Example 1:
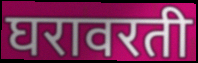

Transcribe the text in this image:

घरावरती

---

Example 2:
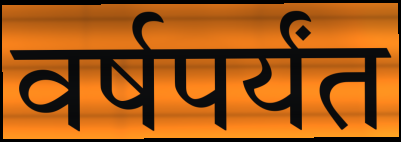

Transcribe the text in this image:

वर्षपर्यंत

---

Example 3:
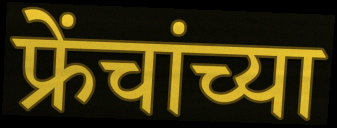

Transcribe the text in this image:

फ्रेंचांच्या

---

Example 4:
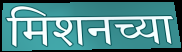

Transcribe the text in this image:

मिशनच्या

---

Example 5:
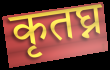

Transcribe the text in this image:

कृतघ्न